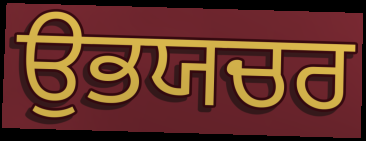
ਉਭਯਚਰ